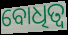
ବୋଧିତ୍ୱ